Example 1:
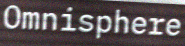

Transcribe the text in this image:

Omnisphere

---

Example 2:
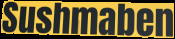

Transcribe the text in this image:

Sushmaben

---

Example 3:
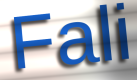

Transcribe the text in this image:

Fali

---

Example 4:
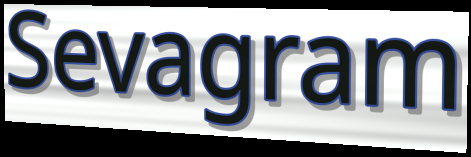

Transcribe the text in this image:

Sevagram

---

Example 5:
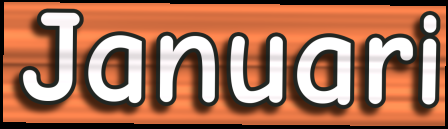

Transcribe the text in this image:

Januari